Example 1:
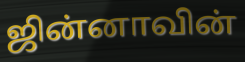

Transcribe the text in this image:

ஜின்னாவின்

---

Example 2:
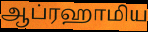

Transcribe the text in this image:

ஆப்ரஹாமிய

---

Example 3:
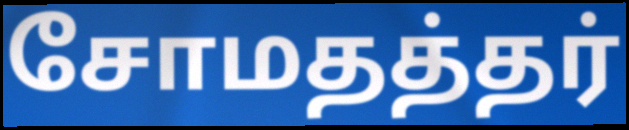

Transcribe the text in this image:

சோமதத்தர்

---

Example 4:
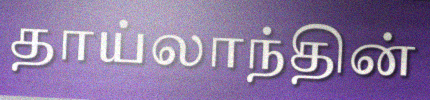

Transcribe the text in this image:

தாய்லாந்தின்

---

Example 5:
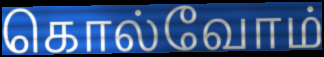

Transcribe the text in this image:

கொல்வோம்